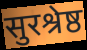
सुरश्रेष्ठ